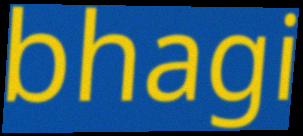
bhagi